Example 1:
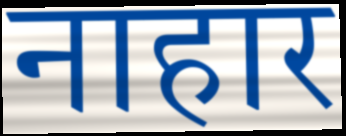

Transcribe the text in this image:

नाहार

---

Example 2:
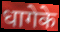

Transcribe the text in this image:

धागेके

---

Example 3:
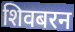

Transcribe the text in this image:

शिवबरन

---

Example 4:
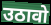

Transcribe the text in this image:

उठावो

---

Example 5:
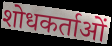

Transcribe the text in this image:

शोधकर्ताओं